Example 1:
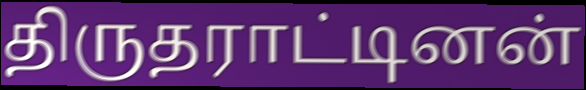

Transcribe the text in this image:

திருதராட்டினன்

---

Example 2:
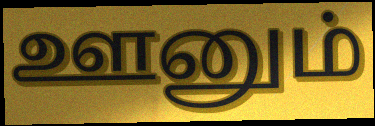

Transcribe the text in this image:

ஊனும்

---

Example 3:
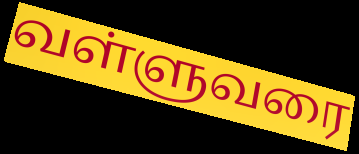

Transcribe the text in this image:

வள்ளுவரை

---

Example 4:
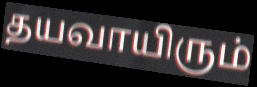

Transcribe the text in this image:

தயவாயிரும்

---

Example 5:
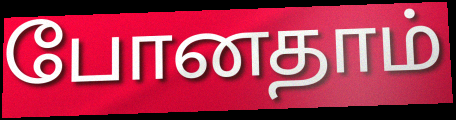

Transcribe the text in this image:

போனதாம்